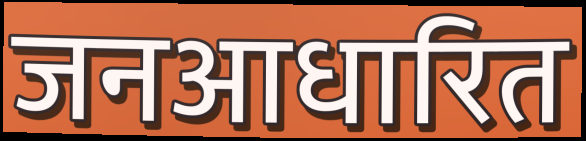
जनआधारित